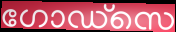
ഗോഡ്സെ